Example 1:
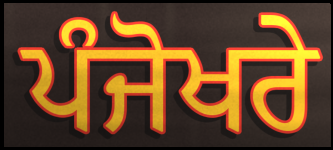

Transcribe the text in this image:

ਪੰਜੋਖਰੇ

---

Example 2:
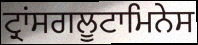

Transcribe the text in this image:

ਟ੍ਰਾਂਸਗਲੂਟਾਮਿਨੇਸ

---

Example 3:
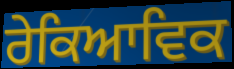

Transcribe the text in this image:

ਰੇਕਿਆਵਿਕ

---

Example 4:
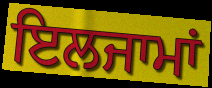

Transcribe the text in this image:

ਇਲਜਾਮਾਂ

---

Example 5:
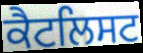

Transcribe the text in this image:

ਕੈਟਲਿਸਟ